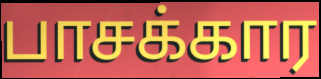
பாசக்கார